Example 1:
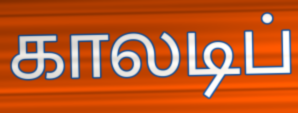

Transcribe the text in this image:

காலடிப்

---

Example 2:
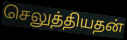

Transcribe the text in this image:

செலுத்தியதன்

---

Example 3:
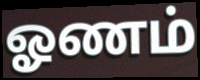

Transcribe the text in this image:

ஓணம்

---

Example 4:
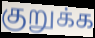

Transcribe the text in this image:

குறுக்க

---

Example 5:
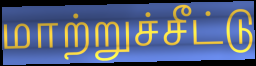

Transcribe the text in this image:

மாற்றுச்சீட்டு